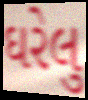
ઘરેલુ